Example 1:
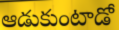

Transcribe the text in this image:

ఆడుకుంటాడో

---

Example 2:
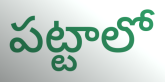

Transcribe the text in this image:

పట్టాలో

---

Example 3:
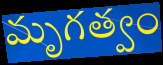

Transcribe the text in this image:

మృగత్వం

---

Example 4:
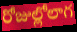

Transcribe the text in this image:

రోజుల్లోలాగ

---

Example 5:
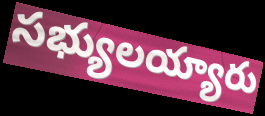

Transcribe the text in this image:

సభ్యులయ్యారు